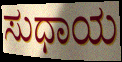
ಸುಧಾಯ